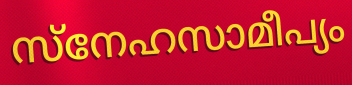
സ്നേഹസാമീപ്യം